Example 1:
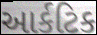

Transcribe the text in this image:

આર્કટિક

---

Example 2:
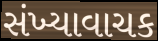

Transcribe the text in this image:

સંખ્યાવાચક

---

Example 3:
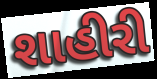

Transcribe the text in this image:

શાહીરી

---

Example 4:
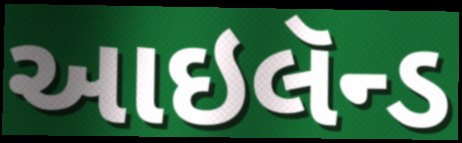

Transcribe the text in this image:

આઇલૅન્ડ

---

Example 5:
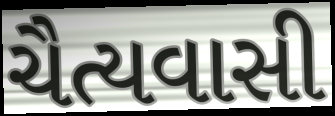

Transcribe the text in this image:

ચૈત્યવાસી